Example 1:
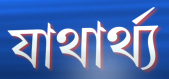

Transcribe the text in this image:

যাথার্থ্য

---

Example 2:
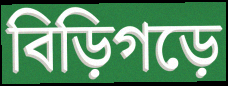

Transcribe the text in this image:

বিড়িগড়ে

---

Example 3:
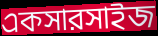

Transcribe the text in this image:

একসারসাইজ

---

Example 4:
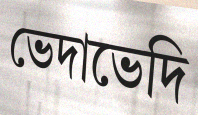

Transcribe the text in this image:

ভেদাভেদি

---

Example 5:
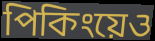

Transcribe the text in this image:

পিকিংয়েও